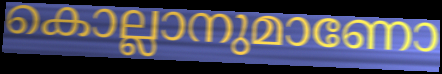
കൊല്ലാനുമാണോ